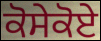
ਕੋਸੇਕੋਏ